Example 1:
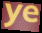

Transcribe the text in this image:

ye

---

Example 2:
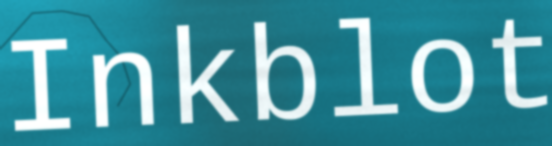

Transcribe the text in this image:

Inkblot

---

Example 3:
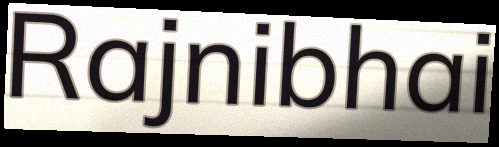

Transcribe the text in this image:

Rajnibhai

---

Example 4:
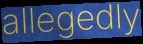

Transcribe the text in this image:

allegedly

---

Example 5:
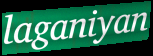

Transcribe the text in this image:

laganiyan